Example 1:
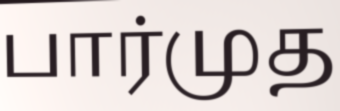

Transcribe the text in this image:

பார்முத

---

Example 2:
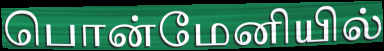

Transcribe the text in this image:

பொன்மேனியில்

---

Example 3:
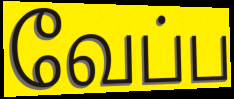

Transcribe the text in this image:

வேப்ப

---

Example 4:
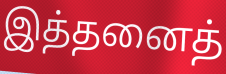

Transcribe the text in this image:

இத்தனைத்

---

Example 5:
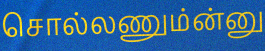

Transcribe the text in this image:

சொல்லணும்ன்னு